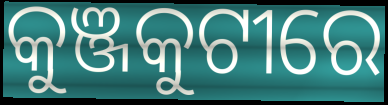
କୁଞ୍ଜକୁଟୀରେ